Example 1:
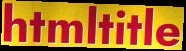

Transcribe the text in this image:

htmltitle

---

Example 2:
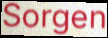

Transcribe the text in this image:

Sorgen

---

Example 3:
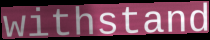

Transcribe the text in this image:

withstand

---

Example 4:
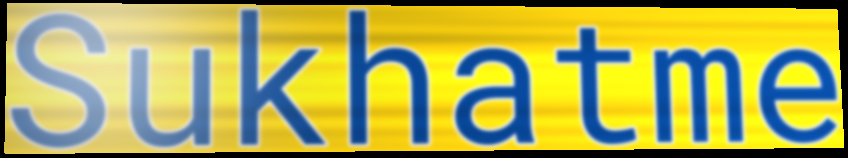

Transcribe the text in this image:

Sukhatme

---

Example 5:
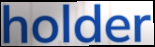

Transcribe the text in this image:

holder